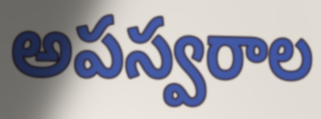
అపస్వరాల